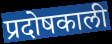
प्रदोषकाली